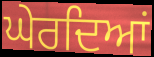
ਘੇਰਦਿਆਂ